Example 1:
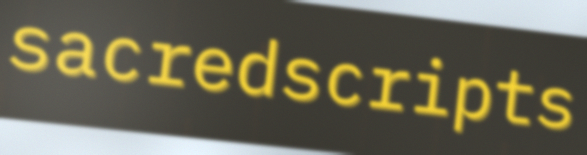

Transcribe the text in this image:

sacredscripts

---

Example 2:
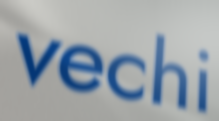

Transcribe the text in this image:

vechi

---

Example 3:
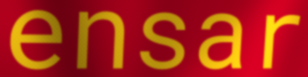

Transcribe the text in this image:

ensar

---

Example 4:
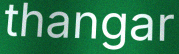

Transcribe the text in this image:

thangar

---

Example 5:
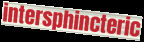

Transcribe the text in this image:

intersphincteric